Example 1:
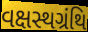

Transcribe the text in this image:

વક્ષસ્થગ્રંથિ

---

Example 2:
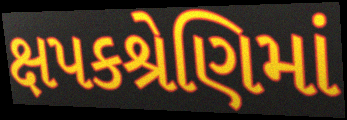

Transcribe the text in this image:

ક્ષપકશ્રેણિમાં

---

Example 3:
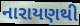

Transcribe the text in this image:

નારાયણથી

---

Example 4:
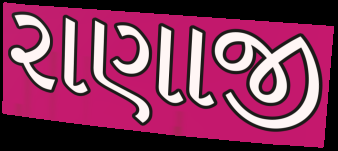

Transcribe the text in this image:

રાણાજી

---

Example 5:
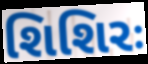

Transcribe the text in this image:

શિશિરઃ